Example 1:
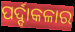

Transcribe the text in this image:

ପର୍ଦ୍ଦାକଳାର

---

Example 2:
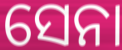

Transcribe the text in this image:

ସେନା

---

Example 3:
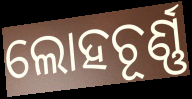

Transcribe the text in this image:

ଲୋହଚୂର୍ଣ୍ଣ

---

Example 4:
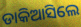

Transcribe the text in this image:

ଡାକିଆସିଲେ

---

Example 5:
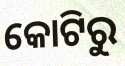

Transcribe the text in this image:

କୋଟିରୁ